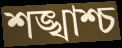
শঙ্খাশ্চ